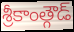
శ్రీకాంత్గౌడ్